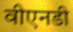
वीएनडी